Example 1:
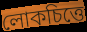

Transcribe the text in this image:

লোকচিত্তে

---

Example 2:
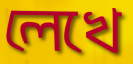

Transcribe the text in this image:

লেখে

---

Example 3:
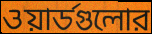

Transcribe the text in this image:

ওয়ার্ডগুলোর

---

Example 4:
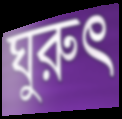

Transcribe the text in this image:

ঘুরুৎ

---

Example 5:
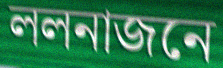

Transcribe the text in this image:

ললনাজনে